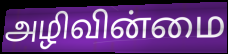
அழிவின்மை